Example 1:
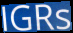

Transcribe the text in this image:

IGRs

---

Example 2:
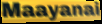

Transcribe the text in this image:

Maayanai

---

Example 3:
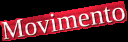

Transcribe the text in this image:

Movimento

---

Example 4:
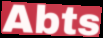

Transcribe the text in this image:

Abts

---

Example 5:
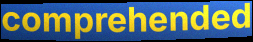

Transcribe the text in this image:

comprehended